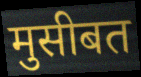
मुसीबत